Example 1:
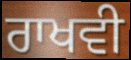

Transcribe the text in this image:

ਰਾਖਵੀ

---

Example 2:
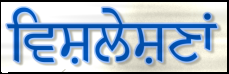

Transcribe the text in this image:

ਵਿਸ਼ਲੇਸ਼ਣਾਂ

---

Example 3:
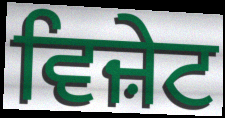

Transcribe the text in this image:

ਵਿਜ਼ੇਟ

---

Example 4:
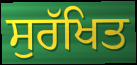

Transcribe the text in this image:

ਸੁਰੱਖਿਤ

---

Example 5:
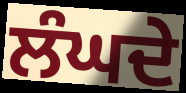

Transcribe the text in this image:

ਲੰਘਦੇ